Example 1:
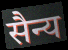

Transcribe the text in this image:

सैन्‍य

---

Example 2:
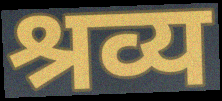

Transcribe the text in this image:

श्रव्य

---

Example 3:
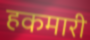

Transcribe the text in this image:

हकमारी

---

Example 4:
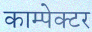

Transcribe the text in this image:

काम्पेक्टर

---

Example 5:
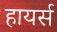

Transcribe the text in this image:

हायर्स